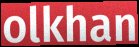
olkhan